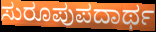
ಸುರೂಪುಪದಾರ್ಥ